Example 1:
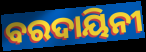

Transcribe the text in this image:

ବରଦାୟିନୀ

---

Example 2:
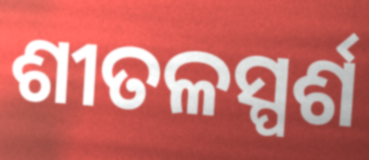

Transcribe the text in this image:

ଶୀତଳସ୍ପର୍ଶ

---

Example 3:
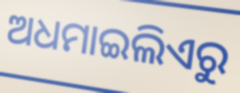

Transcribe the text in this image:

ଅଧମାଇଲିଏରୁ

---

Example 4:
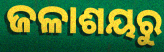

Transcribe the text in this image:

ଜଳାଶୟରୁ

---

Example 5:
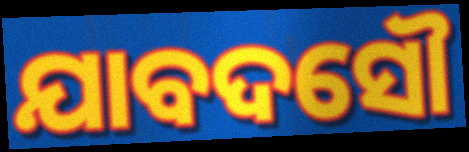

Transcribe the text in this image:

ଯାବଦସୌ